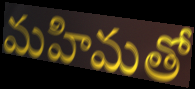
మహిమతో